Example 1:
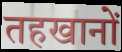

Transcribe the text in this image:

तहखानों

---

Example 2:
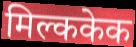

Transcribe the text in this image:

मिल्ककेक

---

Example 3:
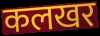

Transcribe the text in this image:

कलखर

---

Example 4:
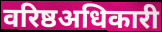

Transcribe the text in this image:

वरिष्ठअधिकारी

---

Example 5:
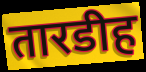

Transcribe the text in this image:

तारडीह